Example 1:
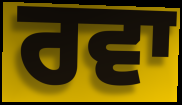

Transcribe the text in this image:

ਰਵਾ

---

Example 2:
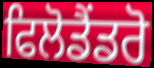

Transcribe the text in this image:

ਫਿਲੋਡੈਂਡਰੋ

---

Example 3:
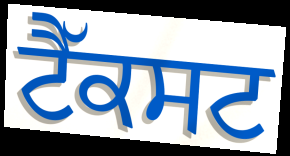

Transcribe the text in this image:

ਟੈੱਕਸਟ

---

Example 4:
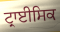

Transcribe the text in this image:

ਟ੍ਰਾਈਸਿਕ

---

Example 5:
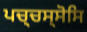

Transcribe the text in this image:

ਪਚ੍ਚਸ੍ਸੋਸਿ